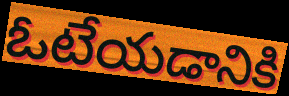
ఓటేయడానికి